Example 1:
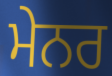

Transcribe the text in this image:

ਮੇਨਰ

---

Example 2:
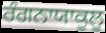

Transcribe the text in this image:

ਰੰਗਨਾਯਾਕੂਲੂ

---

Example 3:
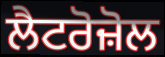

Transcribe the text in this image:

ਲੈਟਰੋਜ਼ੋਲ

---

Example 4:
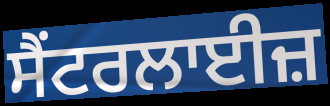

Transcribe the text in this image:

ਸੈਂਟਰਲਾਈਜ਼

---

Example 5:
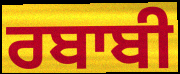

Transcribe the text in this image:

ਰਬਾਬੀ